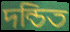
দন্ডিত